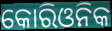
କୋରିଓନିକ